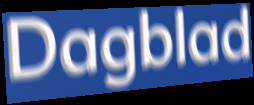
Dagblad